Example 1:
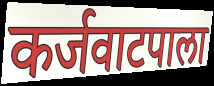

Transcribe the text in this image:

कर्जवाटपाला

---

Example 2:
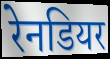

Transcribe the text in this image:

रेनडियर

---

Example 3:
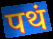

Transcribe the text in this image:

पथं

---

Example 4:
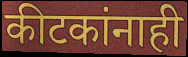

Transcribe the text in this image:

कीटकांनाही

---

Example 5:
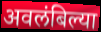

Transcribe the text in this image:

अवलंबिल्या